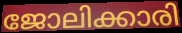
ജോലിക്കാരി